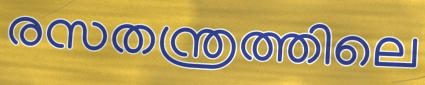
രസതന്ത്രത്തിലെ